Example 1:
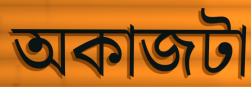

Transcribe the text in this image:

অকাজটা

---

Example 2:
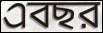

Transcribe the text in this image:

এবছর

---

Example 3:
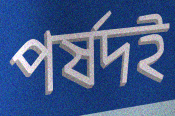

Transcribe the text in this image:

পর্ষদই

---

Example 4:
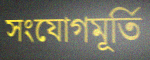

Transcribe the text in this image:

সংযোগমূর্তি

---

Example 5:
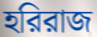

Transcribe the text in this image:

হরিরাজ